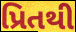
પ્રિતથી